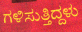
ಗಳಿಸುತ್ತಿದ್ದಳು